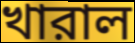
খারাল